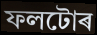
ফলটোৰ